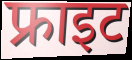
फ्राइट